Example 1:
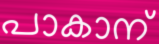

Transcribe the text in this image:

പാകാന്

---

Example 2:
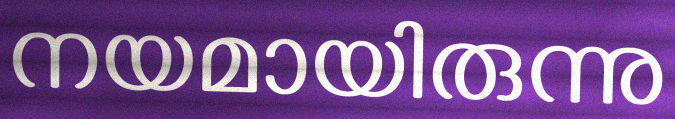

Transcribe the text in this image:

നയമായിരുന്നു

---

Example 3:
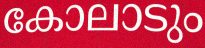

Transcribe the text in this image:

കോലാടും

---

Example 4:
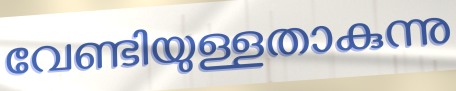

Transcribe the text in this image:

വേണ്ടിയുള്ളതാകുന്നു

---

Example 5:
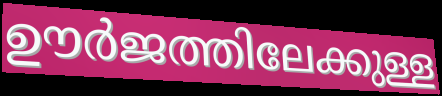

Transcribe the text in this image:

ഊർജത്തിലേക്കുള്ള